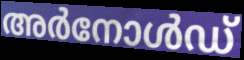
അർനോൾഡ്